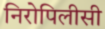
निरोपिलीसी